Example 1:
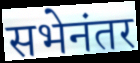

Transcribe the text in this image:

सभेनंतर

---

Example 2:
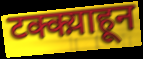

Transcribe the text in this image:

टक्क्य़ाहून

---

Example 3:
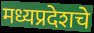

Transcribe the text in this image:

मध्यप्रदेशचे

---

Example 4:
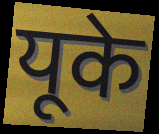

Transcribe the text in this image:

यूके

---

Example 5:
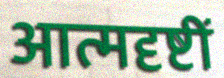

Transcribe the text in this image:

आत्मदृष्टीं